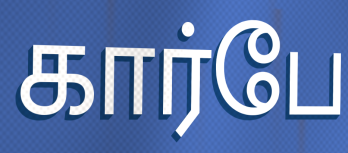
கார்பே